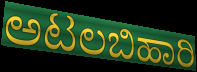
ಅಟಲಬಿಹಾರಿ